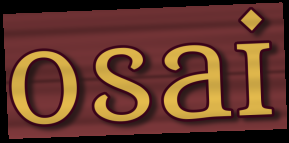
osai